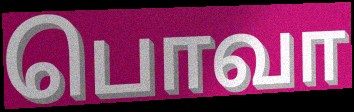
பொவா